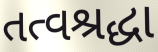
તત્વશ્રદ્ધા